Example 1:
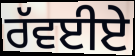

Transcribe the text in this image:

ਰੱਵਈਏ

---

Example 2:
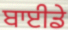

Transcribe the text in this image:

ਬਾਈਡੇ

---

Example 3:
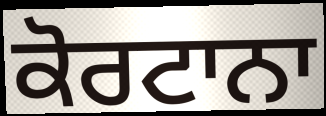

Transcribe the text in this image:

ਕੋਰਟਾਨਾ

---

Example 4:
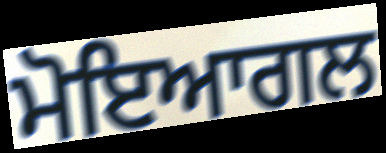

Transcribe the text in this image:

ਮੋਇਆਗਲ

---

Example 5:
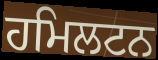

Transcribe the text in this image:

ਹਮਿਲਟਨ